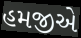
હમજીએ